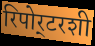
रिपोर्टरशी